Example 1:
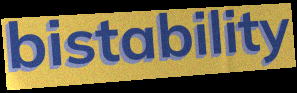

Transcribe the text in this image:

bistability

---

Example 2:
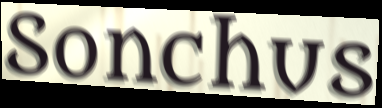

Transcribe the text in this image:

Sonchus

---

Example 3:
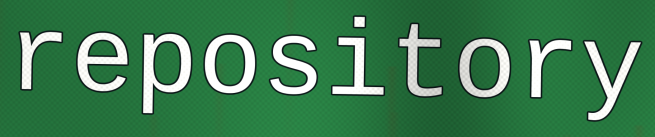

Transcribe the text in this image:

repository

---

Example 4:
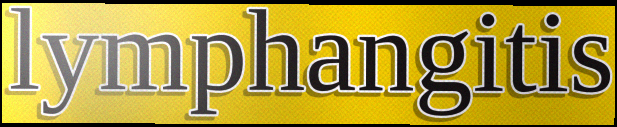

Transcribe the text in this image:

lymphangitis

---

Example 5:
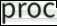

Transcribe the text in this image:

proc